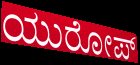
ಯುರೋಪ್